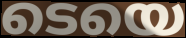
ടെയെ